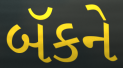
બૅકને